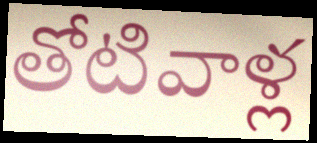
తోటివాళ్ల